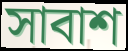
সাবাশ